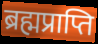
ब्रह्मप्राप्ति